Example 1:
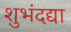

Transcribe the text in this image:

शुभंदद्या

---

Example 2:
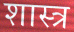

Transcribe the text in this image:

शास्‍त्र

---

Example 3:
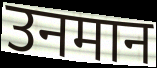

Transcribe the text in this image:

उनमान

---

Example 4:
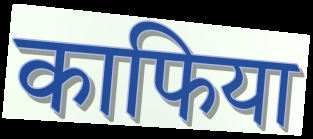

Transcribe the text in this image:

काफिया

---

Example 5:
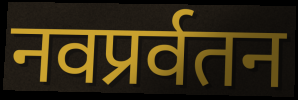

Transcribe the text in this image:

नवप्रर्वतन